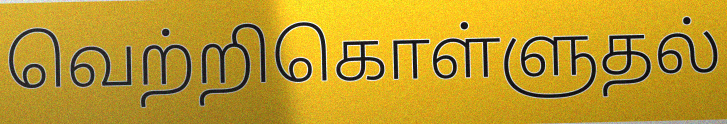
வெற்றிகொள்ளுதல்